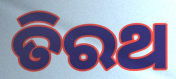
ତିରଥ